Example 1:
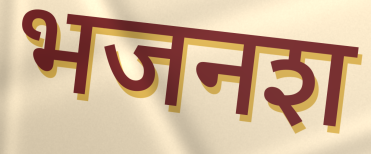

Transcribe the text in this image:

भजनश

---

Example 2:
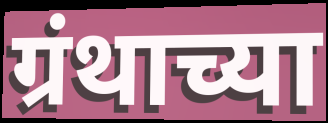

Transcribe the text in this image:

ग्रंथाच्या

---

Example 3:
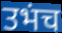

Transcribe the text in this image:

उभंच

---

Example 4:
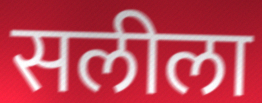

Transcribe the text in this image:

सलीला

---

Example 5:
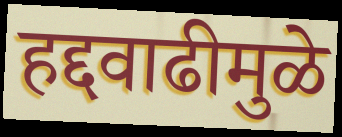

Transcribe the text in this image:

हद्दवाढीमुळे